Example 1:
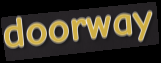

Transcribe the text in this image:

doorway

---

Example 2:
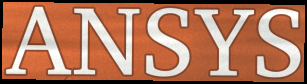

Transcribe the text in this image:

ANSYS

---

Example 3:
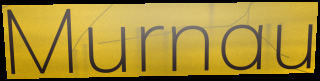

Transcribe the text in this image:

Murnau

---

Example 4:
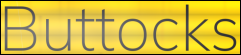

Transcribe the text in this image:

Buttocks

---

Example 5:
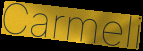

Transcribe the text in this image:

Carmeli